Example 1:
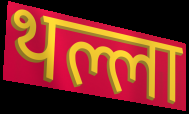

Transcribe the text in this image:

थल्ला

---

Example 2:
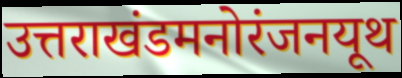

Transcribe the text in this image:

उत्तराखंडमनोरंजनयूथ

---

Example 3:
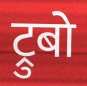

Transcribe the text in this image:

ट्रुबो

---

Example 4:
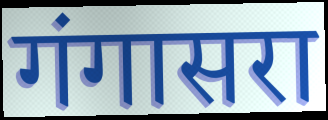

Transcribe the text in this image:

गंगासरा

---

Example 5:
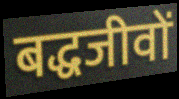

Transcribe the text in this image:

बद्धजीवों